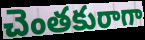
చెంతకురాగా